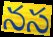
నస